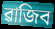
ৱাজিব